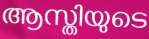
ആസ്തിയുടെ